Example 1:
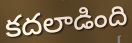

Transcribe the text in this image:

కదలాడింది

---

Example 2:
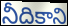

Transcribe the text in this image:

నీదికాని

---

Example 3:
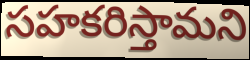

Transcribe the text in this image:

సహకరిస్తామని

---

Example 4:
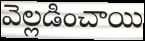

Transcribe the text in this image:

వెల్లడించాయి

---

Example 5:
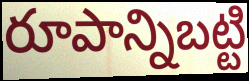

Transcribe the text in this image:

రూపాన్నిబట్టి